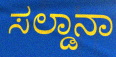
ಸಲ್ಡಾನಾ